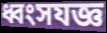
ধ্বংসযজ্ঞ